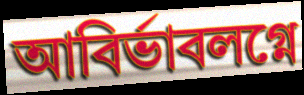
আবির্ভাবলগ্নে